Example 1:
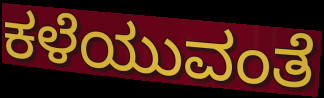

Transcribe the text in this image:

ಕಳೆಯುವಂತೆ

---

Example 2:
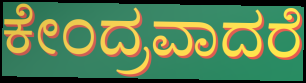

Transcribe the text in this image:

ಕೇಂದ್ರವಾದರೆ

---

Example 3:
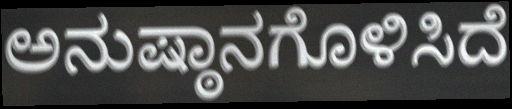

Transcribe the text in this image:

ಅನುಷ್ಠಾನಗೊಳಿಸಿದೆ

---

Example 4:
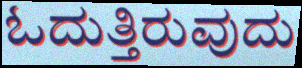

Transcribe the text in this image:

ಓದುತ್ತಿರುವುದು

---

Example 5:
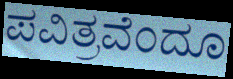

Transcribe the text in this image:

ಪವಿತ್ರವೆಂದೂ